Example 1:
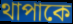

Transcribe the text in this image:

থাপাকে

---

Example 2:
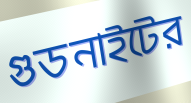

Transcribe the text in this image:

গুডনাইটের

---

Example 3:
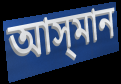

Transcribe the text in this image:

আস্‌মান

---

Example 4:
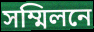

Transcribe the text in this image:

সম্মিলনে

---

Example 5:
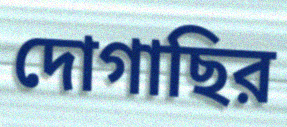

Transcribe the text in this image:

দোগাছির